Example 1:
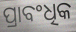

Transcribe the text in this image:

ପ୍ରାବଂଧିକ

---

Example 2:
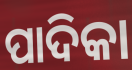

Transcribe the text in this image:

ପାଦିକା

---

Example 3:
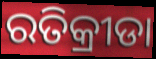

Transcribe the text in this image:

ରତିକ୍ରୀଡା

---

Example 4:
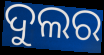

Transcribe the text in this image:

ଦୁଲର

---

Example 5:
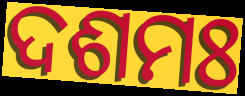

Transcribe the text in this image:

ଦଶମଃ